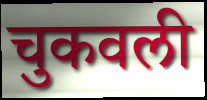
चुकवली